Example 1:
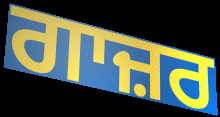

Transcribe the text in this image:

ਗਾਜ਼ਰ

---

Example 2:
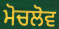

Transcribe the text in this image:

ਮੋਚਲੋਵ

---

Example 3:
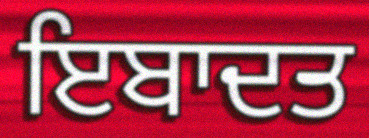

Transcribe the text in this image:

ਇਬਾਦਤ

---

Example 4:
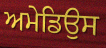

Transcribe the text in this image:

ਅਮੇਡਿਉਸ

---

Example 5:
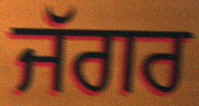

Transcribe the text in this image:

ਜੱਗਰ